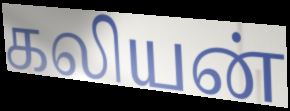
கலியன்